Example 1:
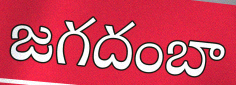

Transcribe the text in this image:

జగదంబా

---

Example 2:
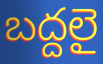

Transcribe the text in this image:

బద్దలై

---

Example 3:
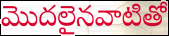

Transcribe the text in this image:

మొదలైనవాటితో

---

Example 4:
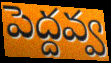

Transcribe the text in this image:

పెద్దవ్వ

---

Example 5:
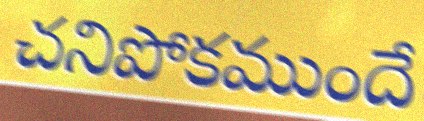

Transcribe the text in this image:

చనిపోకముందే